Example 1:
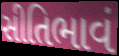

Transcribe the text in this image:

સીતિભાવં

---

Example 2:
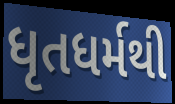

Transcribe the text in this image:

ધૃતધર્મથી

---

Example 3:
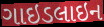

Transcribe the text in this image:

ગાઇડલાઇન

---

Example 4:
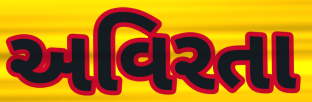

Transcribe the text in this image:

અવિરતા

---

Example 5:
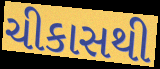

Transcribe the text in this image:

ચીકાસથી